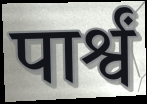
पार्श्वं